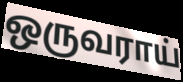
ஒருவராய்